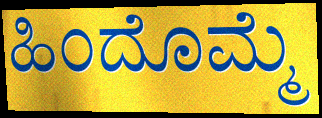
ಹಿಂದೊಮ್ಮೆ